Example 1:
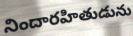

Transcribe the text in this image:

నిందారహితుడును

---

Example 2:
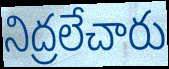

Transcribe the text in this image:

నిద్రలేచారు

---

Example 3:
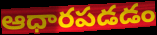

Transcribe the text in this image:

ఆధారపడడం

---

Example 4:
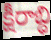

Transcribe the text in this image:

క్షీరాబ్ధి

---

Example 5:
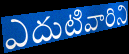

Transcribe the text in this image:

ఎదుటివారిని